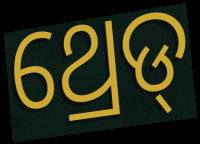
ଥ୍ରେଡ୍